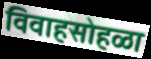
विवाहसोहळा